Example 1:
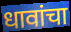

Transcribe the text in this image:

धावांचा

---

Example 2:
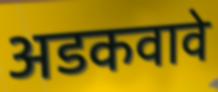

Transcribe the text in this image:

अडकवावे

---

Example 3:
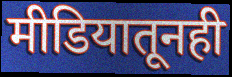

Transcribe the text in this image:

मीडियातूनही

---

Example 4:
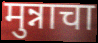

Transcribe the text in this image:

मुन्नाचा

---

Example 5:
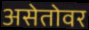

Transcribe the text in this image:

असेतोवर